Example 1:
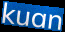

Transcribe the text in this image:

kuan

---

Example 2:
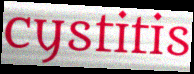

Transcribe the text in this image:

cystitis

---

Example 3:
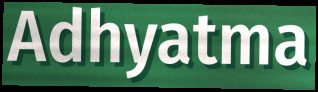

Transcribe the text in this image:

Adhyatma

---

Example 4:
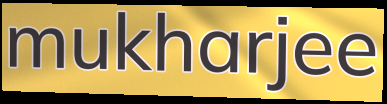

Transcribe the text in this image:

mukharjee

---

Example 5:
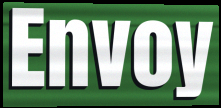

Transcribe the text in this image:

Envoy